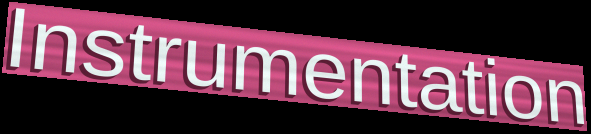
Instrumentation